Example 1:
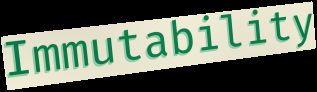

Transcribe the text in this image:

Immutability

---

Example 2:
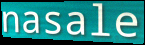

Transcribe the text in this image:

nasale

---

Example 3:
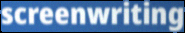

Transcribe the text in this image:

screenwriting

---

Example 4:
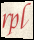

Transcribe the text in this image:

rpl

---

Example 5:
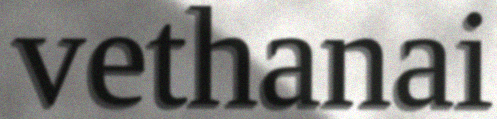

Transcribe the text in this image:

vethanai